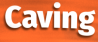
Caving